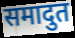
समादुत